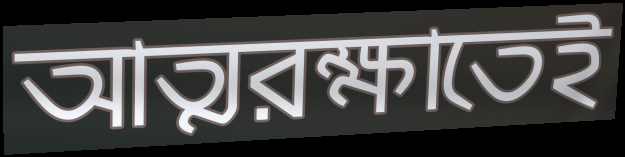
আত্মরক্ষাতেই